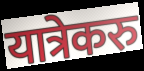
यात्रेकरु